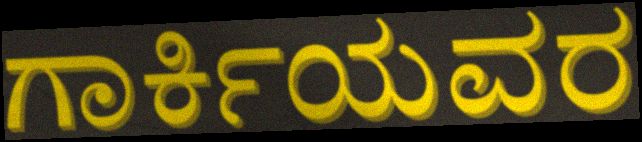
ಗಾರ್ಕಿಯವರ